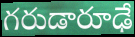
గరుడారూఢే